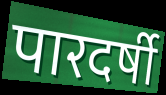
पारदर्षी